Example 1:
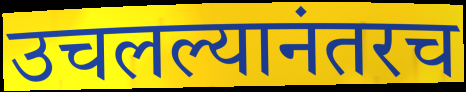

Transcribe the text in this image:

उचलल्यानंतरच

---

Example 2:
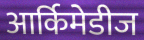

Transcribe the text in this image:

आर्किमेडीज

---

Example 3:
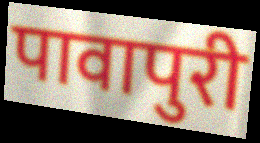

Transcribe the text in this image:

पावापुरी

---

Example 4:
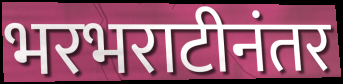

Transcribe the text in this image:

भरभराटीनंतर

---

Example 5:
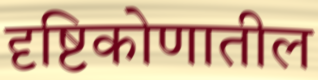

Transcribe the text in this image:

दृष्टिकोणातील